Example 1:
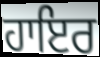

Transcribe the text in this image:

ਹਾਇਰ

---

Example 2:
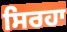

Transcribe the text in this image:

ਸਿਰਹਾ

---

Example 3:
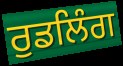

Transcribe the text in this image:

ਰੁਡਲਿੰਗ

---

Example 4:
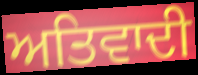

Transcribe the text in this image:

ਅਤਿਵਾਦੀ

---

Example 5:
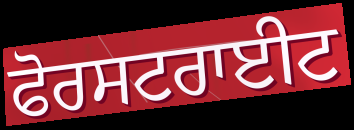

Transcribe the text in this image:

ਫੋਰਸਟਰਾਈਟ